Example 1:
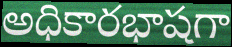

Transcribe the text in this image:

అధికారభాషగా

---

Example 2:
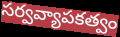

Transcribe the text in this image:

సర్వవ్యాపకత్వం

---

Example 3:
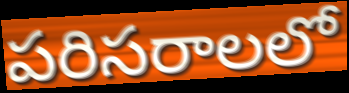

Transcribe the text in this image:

పరిసరాలలో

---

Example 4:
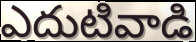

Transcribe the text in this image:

ఎదుటివాడి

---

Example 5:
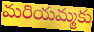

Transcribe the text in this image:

మరియమ్మకు